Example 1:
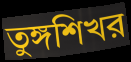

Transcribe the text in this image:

তুঙ্গশিখর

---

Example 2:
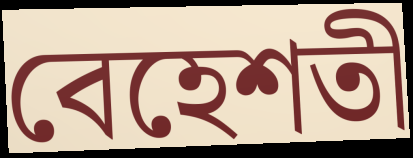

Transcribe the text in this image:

বেহেশতী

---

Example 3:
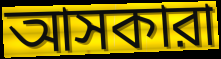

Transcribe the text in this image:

আসকারা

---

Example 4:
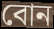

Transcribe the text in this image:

বোন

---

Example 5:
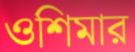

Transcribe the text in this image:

ওশিমার